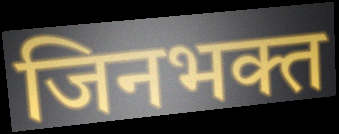
जिनभक्त